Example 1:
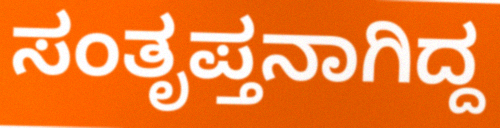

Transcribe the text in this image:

ಸಂತೃಪ್ತನಾಗಿದ್ದ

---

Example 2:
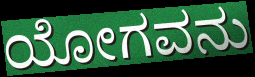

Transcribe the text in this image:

ಯೋಗವನು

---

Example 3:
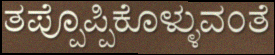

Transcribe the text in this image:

ತಪ್ಪೊಪ್ಪಿಕೊಳ್ಳುವಂತೆ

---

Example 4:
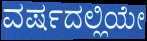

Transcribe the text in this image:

ವರ್ಷದಲ್ಲಿಯೇ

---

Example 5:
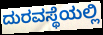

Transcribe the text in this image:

ದುರವಸ್ಥೆಯಲ್ಲಿ